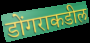
डोंगराकडील